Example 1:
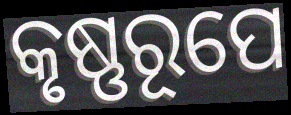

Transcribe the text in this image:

କୃଷ୍ଣରୂପେ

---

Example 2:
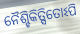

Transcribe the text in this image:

ନୈଶ୍ଚିକିତ୍ସିତୋଽପି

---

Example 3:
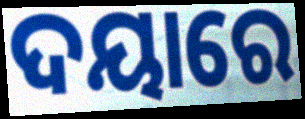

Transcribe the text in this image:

ଦୟାରେ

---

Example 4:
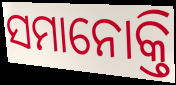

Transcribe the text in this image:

ସମାନୋକ୍ତି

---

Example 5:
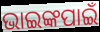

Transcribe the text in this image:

ଭାଇଙ୍କପାଇଁ